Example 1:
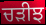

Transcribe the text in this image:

ਚੜੀਝ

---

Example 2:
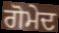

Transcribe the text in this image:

ਗੋਮੇਦ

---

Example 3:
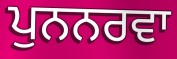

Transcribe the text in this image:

ਪੁਨਨਰਵਾ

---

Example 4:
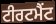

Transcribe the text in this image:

ਟੀਰਟਮੈਂਟ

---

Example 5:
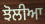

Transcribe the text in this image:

ਝੋਲੀਆ